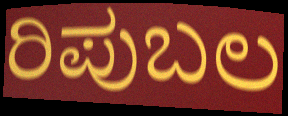
ರಿಪುಬಲ